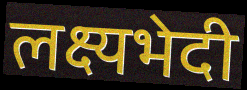
लक्ष्यभेदी